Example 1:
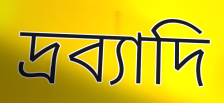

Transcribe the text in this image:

দ্রব্যাদি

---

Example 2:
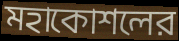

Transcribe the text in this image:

মহাকোশলের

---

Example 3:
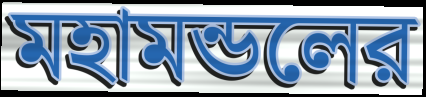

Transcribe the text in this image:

মহামন্ডলের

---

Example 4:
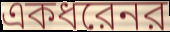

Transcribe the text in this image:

একধরেনর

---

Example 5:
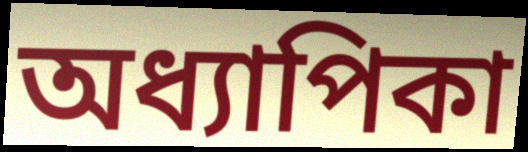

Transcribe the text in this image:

অধ্যাপিকা